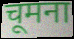
चूमना